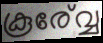
കൂര്വ്വേ